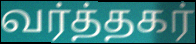
வர்த்தகர்